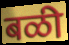
बळी